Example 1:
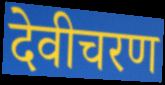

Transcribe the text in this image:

देवीचरण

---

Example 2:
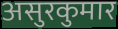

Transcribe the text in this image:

असुरकुमार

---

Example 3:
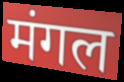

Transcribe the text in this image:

मंगल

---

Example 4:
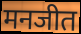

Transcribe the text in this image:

मनजीत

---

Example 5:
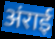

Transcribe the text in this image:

अंराई